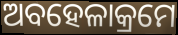
ଅବହେଳାକ୍ରମେ